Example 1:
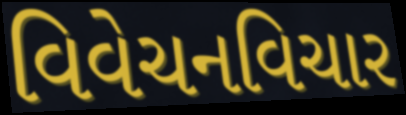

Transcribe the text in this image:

વિવેચનવિચાર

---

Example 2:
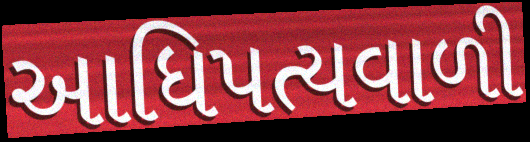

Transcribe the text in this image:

આધિપત્યવાળી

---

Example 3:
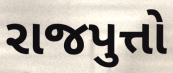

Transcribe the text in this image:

રાજપુત્તો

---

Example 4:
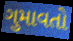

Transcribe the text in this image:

ગુમાવતો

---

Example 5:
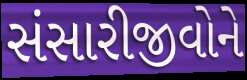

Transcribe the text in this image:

સંસારીજીવોને